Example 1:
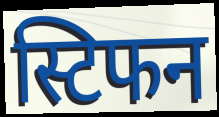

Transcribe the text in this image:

स्टिफन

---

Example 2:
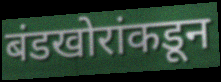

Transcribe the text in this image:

बंडखोरांकडून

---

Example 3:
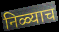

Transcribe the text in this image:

निळ्याच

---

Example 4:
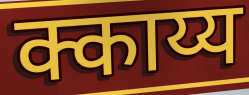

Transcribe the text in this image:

क्काय्य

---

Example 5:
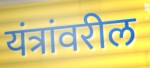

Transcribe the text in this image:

यंत्रांवरील